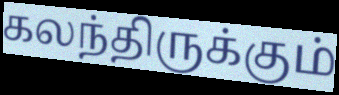
கலந்திருக்கும்